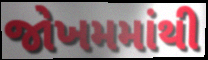
જોખમમાંથી